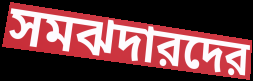
সমঝদারদের